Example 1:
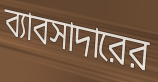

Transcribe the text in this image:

ব্যাবসাদারের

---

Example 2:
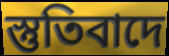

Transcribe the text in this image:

স্তুতিবাদে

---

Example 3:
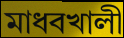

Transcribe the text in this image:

মাধবখালী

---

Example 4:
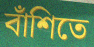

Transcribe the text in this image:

বাঁশিতে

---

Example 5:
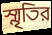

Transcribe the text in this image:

স্মৃতির